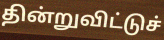
தின்றுவிட்டுச்